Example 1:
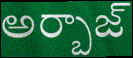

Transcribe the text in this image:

అర్బాజ్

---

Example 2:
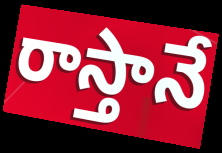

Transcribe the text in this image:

రాస్తానే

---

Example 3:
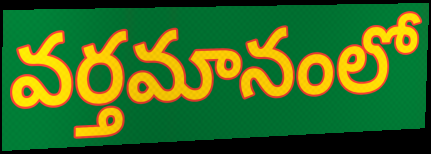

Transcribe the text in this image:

వర్తమానంలో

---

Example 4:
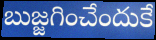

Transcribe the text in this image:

బుజ్జగించేందుకే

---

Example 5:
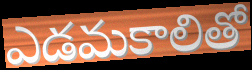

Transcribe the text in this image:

ఎడమకాలితో